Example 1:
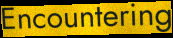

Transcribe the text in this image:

Encountering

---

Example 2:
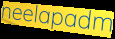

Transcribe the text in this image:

neelapadm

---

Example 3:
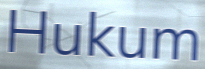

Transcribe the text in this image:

Hukum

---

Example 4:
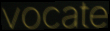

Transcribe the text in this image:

vocate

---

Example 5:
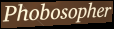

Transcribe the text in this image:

Phobosopher